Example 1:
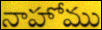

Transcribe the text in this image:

నాహోము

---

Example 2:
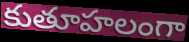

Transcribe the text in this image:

కుతూహలంగా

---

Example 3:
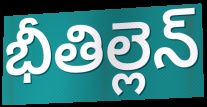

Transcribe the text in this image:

భీతిల్లెన్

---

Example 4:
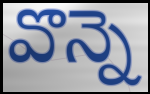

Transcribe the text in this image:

వొన్నె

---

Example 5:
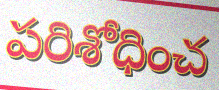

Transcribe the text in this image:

పరిశోధించ